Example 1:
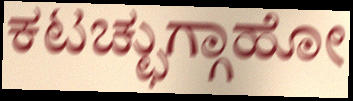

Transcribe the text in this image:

ಕಟಚ್ಛುಗ್ಗಾಹೋ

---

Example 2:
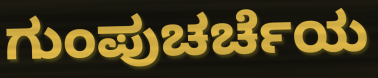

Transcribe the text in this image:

ಗುಂಪುಚರ್ಚೆಯ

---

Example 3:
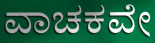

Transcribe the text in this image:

ವಾಚಕವೇ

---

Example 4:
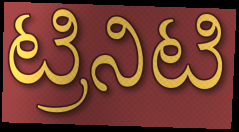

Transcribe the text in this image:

ಟ್ರಿನಿಟಿ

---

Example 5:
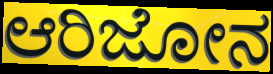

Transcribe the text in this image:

ಆರಿಜೋನ